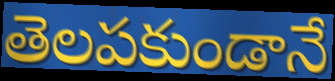
తెలపకుండానే